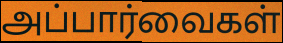
அப்பார்வைகள்